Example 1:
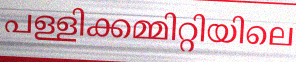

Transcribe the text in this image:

പള്ളിക്കമ്മിറ്റിയിലെ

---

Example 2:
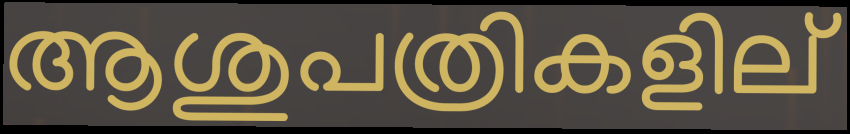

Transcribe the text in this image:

ആശുപത്രികളില്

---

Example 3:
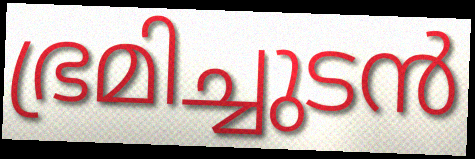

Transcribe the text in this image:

ഭ്രമിച്ചുടൻ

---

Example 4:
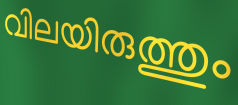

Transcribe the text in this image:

വിലയിരുത്തും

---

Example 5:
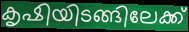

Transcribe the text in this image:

കൃഷിയിടങ്ങിലേക്ക്